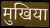
मुखिया